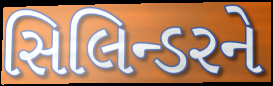
સિલિન્ડરને